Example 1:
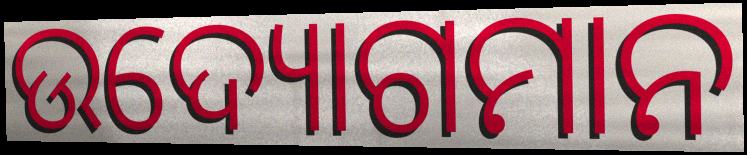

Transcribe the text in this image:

ଉଦ୍ୟୋଗମାନ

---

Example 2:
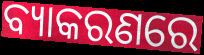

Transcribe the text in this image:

ବ୍ୟାକରଣରେ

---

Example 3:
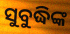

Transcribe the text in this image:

ସୁବୁଦ୍ଧିଙ୍କ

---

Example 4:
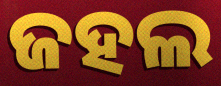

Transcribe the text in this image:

ଜହଲ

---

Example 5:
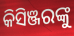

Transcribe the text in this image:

କିସିଞ୍ଜରଙ୍କୁ